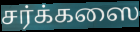
சர்க்கஸை